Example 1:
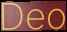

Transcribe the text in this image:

Deo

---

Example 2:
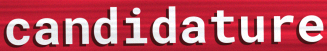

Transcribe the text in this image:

candidature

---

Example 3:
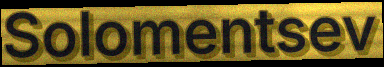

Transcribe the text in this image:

Solomentsev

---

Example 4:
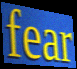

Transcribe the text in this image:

fear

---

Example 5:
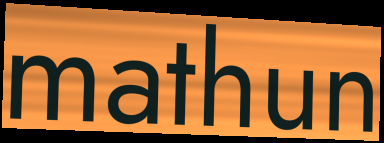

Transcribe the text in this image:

mathun